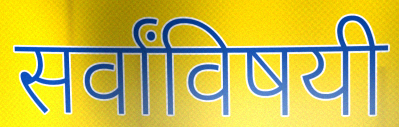
सर्वांविषयी